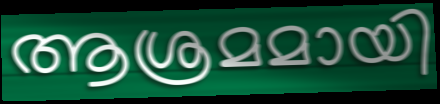
ആശ്രമമായി